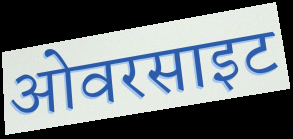
ओवरसाइट